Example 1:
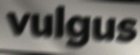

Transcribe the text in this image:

vulgus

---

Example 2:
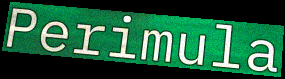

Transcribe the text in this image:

Perimula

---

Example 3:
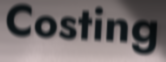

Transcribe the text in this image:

Costing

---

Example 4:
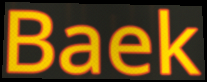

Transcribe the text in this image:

Baek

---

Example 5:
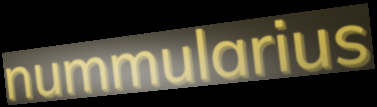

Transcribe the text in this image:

nummularius